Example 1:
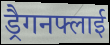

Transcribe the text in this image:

ड्रैगनफ्लाई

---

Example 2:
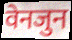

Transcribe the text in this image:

वेनजुन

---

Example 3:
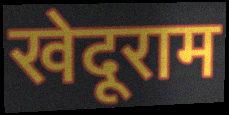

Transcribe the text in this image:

खेदूराम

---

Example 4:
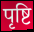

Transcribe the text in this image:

पृष्टि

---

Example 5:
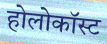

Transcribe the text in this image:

होलोकॉस्ट